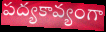
పద్యకావ్యంగా